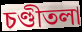
চণ্ডীতলা